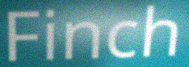
Finch